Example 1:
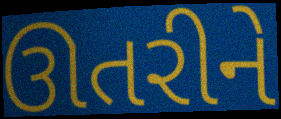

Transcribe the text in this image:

ઊતરીને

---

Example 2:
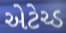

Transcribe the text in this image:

એટેચ્ડ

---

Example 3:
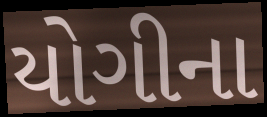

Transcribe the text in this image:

યોગીના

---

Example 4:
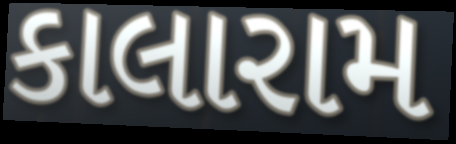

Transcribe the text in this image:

કાલારામ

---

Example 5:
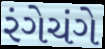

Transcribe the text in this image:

રંગેચંગે